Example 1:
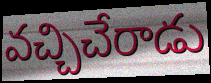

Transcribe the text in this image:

వచ్చిచేరాడు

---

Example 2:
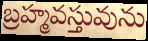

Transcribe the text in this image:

బ్రహ్మవస్తువును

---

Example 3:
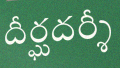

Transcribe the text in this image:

దీర్ఘదర్శీ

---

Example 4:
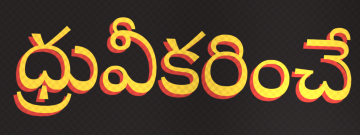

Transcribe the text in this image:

ధ్రువీకరించే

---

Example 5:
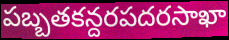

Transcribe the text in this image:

పబ్బతకన్దరపదరసాఖా